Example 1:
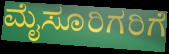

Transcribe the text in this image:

ಮೈಸೂರಿಗರಿಗೆ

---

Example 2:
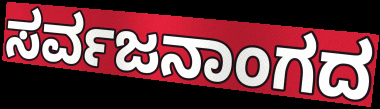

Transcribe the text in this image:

ಸರ್ವಜನಾಂಗದ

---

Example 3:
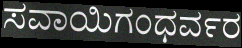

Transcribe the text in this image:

ಸವಾಯಿಗಂಧರ್ವರ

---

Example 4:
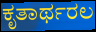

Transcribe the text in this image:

ಕೃತಾರ್ಥರಲ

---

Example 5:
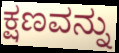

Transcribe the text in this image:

ಕ್ಷಣವನ್ನು